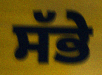
ਸੱਭੇ